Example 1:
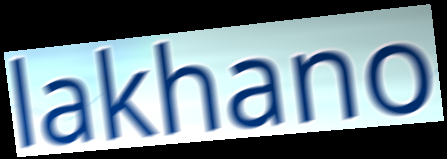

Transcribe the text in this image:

lakhano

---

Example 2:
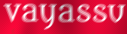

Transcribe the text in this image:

vayassu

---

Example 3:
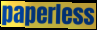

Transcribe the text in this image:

paperless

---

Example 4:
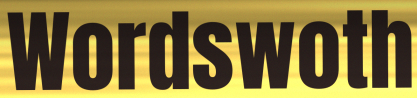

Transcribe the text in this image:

Wordswoth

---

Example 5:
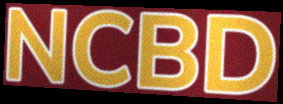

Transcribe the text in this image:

NCBD